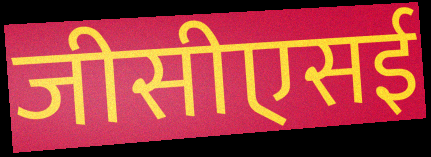
जीसीएसई